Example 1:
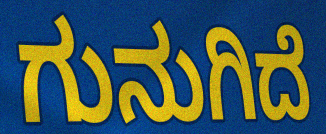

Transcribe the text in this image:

ಗುನುಗಿದೆ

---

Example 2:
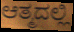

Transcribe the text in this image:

ಆತ್ಮದಲ್ಲಿ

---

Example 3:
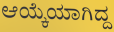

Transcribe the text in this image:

ಆಯ್ಕೆಯಾಗಿದ್ದ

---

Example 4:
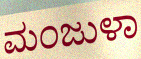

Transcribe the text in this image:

ಮಂಜುಳಾ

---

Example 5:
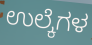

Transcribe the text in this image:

ಉಲ್ಕೆಗಳ